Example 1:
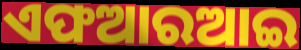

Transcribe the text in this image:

ଏଫଆରଆଇ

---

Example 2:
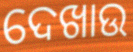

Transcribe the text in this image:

ଦେଖାଉ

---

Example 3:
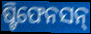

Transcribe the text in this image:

ଷ୍ଟିଫେନସନ୍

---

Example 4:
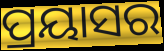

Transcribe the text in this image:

ପ୍ରୟାସର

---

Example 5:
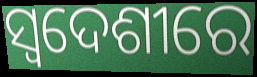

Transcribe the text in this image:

ସ୍ୱଦେଶୀରେ